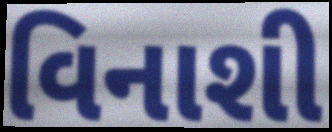
વિનાશી